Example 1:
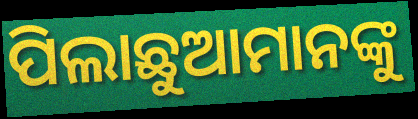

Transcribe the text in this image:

ପିଲାଛୁଆମାନଙ୍କୁ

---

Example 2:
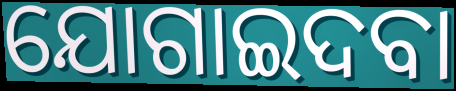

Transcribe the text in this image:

ଯୋଗାଇଦବା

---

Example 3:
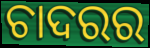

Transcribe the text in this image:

ଚାଦରର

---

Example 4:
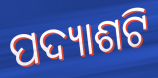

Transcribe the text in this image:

ପଦ୍ୟାଶଟି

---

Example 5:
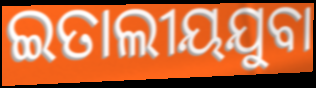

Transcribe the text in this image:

ଇତାଲୀୟଯୁବା